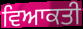
ਵਿਆਕਤੀ